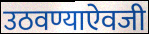
उठवण्याऐवजी